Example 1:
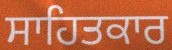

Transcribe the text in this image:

ਸਾਹਿਤਕਾਰ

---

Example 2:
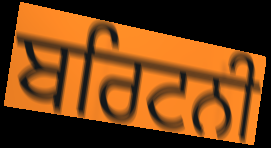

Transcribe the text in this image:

ਬਰਿਟਨੀ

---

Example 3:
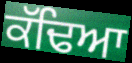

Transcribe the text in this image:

ਕੱਢਿਆ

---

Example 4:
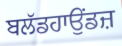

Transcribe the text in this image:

ਬਲੱਡਹਾਉਂਡਜ਼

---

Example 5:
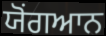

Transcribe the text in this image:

ਯੋਂਗਆਨ